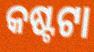
କଷ୍ଟଟା